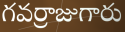
గవర్రాజుగారు